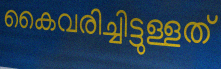
കൈവരിച്ചിട്ടുള്ളത്